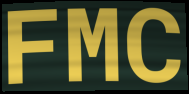
FMC